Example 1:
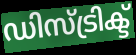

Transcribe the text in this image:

ഡിസ്ട്രിക്ട്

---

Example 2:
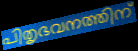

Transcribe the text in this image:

പിതൃഭവനത്തിന്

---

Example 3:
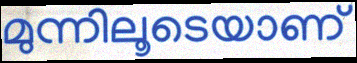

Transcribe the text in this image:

മുന്നിലൂടെയാണ്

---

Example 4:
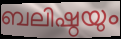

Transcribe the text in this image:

ബലിഷ്ഠയും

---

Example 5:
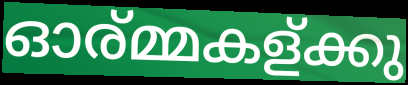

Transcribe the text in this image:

ഓര്മ്മകള്ക്കു